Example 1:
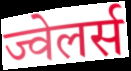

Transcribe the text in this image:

ज्वेलर्स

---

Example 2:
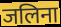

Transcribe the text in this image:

जलिना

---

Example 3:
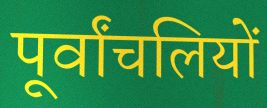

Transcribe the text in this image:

पूर्वांचलियों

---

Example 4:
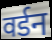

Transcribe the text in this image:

वर्डन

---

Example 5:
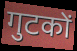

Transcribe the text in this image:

गुटकों